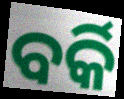
ବର୍କି